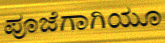
ಪೂಜೆಗಾಗಿಯೂ